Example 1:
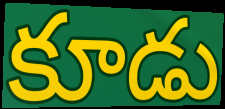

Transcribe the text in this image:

కూడు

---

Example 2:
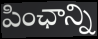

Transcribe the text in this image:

పింఛాన్ని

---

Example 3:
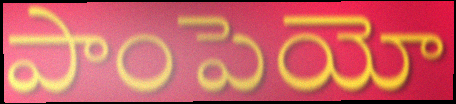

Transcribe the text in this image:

పాంపెయో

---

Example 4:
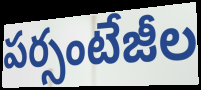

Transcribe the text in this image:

పర్సంటేజీల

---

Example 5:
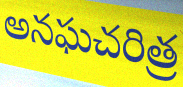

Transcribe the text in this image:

అనఘచరిత్ర